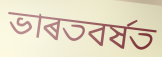
ভাৰতবৰ্ষত